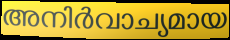
അനിർവാച്യമായ